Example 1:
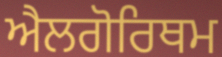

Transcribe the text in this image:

ਐਲਗੋਰਿਥਮ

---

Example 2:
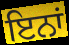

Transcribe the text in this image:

ਇਨਾਂ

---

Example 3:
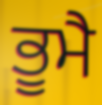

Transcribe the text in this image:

ਭੂਮੈ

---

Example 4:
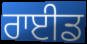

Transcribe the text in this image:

ਰਾਈਡ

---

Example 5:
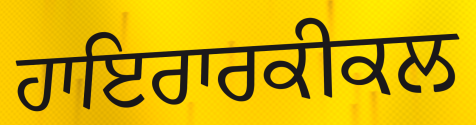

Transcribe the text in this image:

ਹਾਇਰਾਰਕੀਕਲ